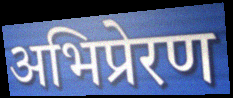
अभिप्रेरण